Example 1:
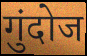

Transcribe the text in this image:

गुंदोज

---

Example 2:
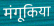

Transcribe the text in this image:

मंगूकिया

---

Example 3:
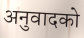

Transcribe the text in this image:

अनुवादको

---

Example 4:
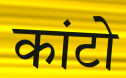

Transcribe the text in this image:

कांटो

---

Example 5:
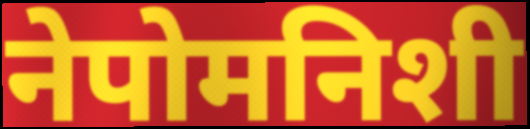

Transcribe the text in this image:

नेपोमनिशी